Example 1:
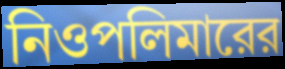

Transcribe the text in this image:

নিওপলিমারের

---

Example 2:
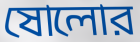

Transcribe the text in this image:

ষোলোর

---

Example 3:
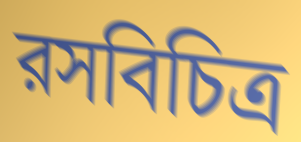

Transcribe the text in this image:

রসবিচিত্র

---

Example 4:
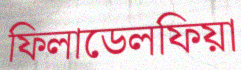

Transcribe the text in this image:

ফিলাডেলফিয়া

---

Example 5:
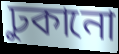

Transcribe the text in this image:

ঢুকানো